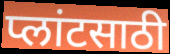
प्लांटसाठी